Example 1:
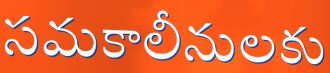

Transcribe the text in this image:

సమకాలీనులకు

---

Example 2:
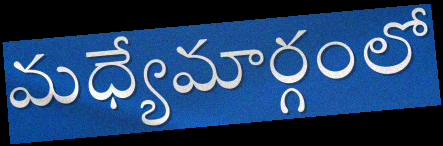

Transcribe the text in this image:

మధ్యేమార్గంలో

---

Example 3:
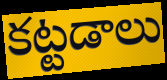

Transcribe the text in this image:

కట్టడాలు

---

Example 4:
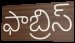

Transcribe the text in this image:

ఫాబ్రిస్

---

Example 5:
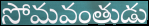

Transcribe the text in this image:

సోమవంతుడు